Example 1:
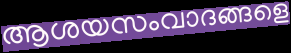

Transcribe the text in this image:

ആശയസംവാദങ്ങളെ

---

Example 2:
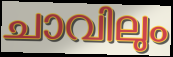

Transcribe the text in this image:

ചാവിലും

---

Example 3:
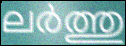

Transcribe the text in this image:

ലർത്തു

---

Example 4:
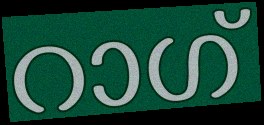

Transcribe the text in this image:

റാഗ്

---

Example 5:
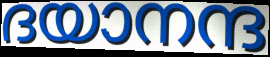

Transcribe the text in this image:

ദയാനന്ദ